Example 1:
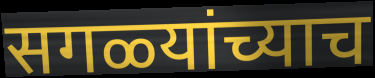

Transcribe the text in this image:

सगळ्यांच्याच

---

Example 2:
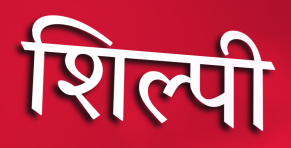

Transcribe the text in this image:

शिल्पी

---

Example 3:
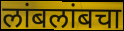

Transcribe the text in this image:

लांबलांबचा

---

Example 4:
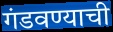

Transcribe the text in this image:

गंडवण्याची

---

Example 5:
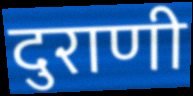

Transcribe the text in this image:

दुराणी